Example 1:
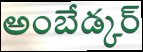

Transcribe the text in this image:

అంబేడ్కర్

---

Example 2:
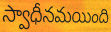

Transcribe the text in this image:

స్వాధీనమయింది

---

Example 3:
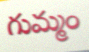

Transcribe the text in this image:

గుమ్మం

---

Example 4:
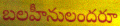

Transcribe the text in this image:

బలహీనులందరూ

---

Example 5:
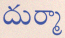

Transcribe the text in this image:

దుర్మా